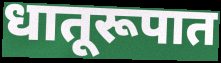
धातूरूपात